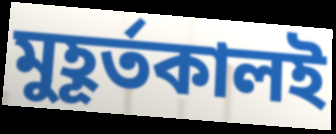
মুহূর্তকালই